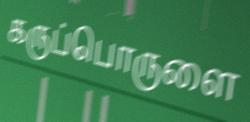
கருப்பொருளை